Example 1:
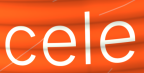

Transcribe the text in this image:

cele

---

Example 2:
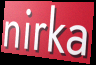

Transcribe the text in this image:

nirka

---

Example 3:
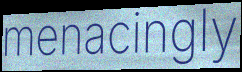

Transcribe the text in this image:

menacingly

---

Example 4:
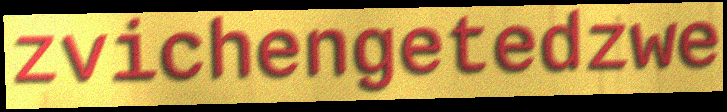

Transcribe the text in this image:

zvichengetedzwe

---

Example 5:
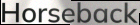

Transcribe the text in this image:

Horseback